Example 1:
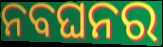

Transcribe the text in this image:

ନବଘନର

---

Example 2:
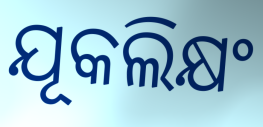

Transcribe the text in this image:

ଯୂକଲିକ୍ଷଂ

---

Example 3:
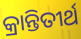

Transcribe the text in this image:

କ୍ରାନ୍ତିତୀର୍ଥ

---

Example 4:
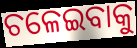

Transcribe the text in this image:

ଚଳେଇବାକୁ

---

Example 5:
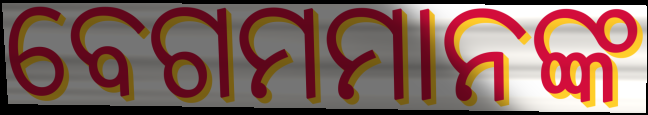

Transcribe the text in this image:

ବେଗମମାନଙ୍କ